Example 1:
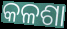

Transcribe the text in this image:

କଳଶା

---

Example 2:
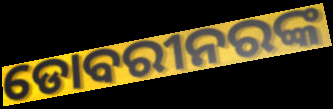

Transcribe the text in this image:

ଡୋବରୀନରଙ୍କ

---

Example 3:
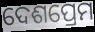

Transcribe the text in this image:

ଦେଶପ୍ରେମ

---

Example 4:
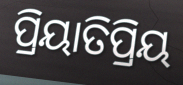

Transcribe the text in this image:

ପ୍ରିୟାତିପ୍ରିୟ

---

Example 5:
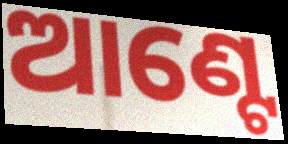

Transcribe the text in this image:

ଆଣ୍ଟେ